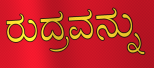
ರುದ್ರವನ್ನು